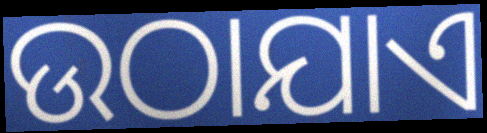
ଉଠାଯାଏ